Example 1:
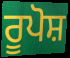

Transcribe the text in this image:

ਰੂਪੋਸ਼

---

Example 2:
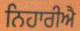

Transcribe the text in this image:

ਨਿਹਾਰੀਐ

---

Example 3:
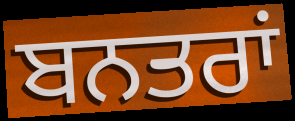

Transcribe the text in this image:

ਬਨਤਰਾਂ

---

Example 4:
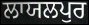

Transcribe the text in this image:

ਲਾਯਲਪੁਰ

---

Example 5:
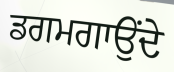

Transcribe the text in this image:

ਡਗਮਗਾਉਂਦੇ